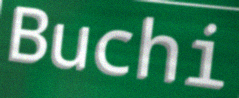
Buchi